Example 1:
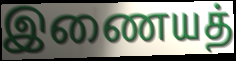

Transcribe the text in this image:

இணையத்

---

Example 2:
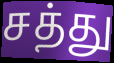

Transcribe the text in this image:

சத்து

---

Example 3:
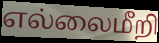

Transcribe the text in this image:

எல்லைமீறி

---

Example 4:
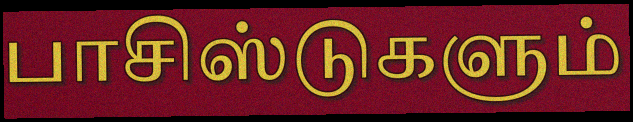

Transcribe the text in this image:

பாசிஸ்டுகளும்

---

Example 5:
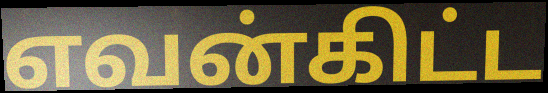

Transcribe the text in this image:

எவன்கிட்ட